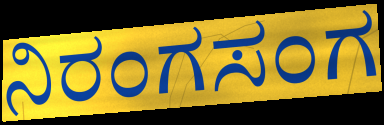
ನಿರಂಗಸಂಗ